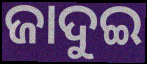
ଜାଦୁଇ